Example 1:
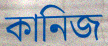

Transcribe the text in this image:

কানিজ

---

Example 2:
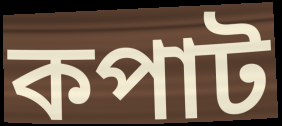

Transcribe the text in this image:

কপাট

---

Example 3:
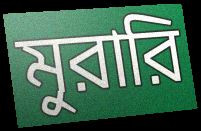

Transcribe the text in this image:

মুরারি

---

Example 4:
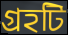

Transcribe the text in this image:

গ্রহটি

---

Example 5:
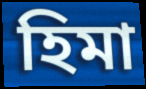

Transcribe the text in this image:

হিমা